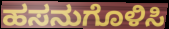
ಹಸನುಗೊಳಿಸಿ